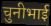
चुनीभाई